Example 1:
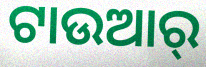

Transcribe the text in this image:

ଟାଉଆର୍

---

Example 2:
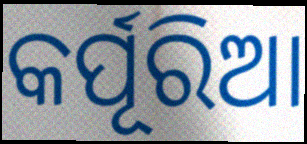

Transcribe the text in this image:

କର୍ପୂରିଆ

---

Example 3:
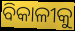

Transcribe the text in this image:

ବିକାଳୀକୁ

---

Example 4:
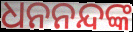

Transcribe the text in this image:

ଧନନନ୍ଦଙ୍କ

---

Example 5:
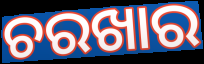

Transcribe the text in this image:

ଚରଖାର